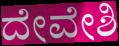
ದೇವೇಶಿ